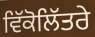
ਵਿੱਕੋਲਿੱਤਰੇ